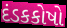
દંડકકોષો